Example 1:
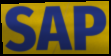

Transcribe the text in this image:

SAP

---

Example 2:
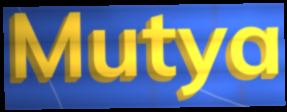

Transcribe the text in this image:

Mutya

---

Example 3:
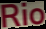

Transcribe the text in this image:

Rio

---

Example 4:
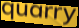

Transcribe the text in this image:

quarry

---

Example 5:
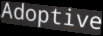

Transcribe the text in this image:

Adoptive